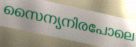
സൈന്യനിരപോലെ